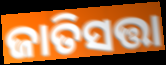
ଜାତିସତ୍ତା